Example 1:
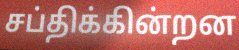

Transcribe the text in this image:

சப்திக்கின்றன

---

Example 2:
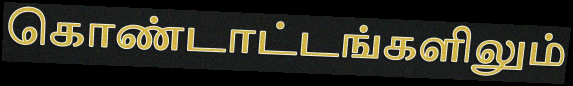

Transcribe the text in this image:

கொண்டாட்டங்களிலும்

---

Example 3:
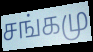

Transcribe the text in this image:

சங்கமு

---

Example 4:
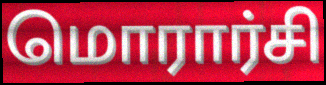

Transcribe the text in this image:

மொரார்சி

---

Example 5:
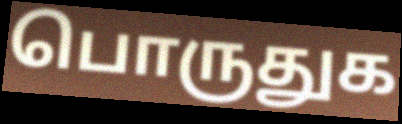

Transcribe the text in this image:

பொருதுக